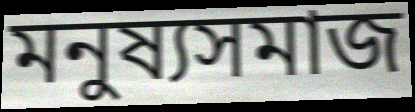
মনুষ্যসমাজ